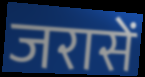
जरासें